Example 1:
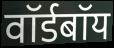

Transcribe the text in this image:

वॉर्डबॉय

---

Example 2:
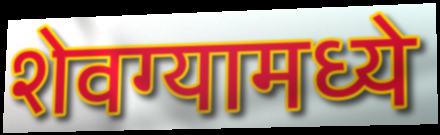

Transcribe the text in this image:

शेवग्यामध्ये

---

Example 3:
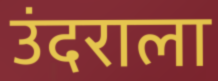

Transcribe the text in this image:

उंदराला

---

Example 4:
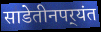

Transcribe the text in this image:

साडेतीनपर्यंत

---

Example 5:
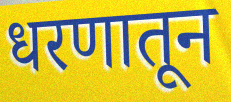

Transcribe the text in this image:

धरणातून